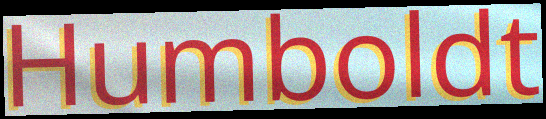
Humboldt